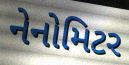
નેનોમિટર